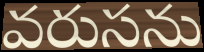
వరుసను